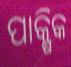
ପାକ୍ଷିକ